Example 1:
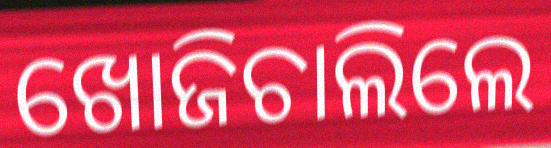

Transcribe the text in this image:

ଖୋଜିଚାଲିଲେ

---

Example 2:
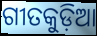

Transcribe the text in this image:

ଗୀତକୁଡ଼ିଆ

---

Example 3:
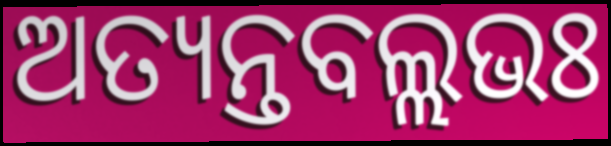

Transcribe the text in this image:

ଅତ୍ୟନ୍ତବଲ୍ଲଭଃ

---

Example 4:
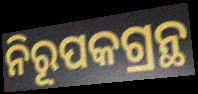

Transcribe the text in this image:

ନିରୂପକଗ୍ରନ୍ଥ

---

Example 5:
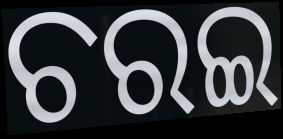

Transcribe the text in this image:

ଚରଇ